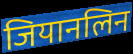
जियानलिन